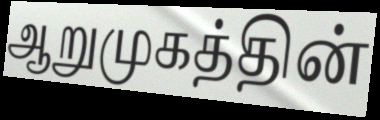
ஆறுமுகத்தின்